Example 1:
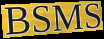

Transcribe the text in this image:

BSMS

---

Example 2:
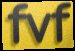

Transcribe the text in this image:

fvf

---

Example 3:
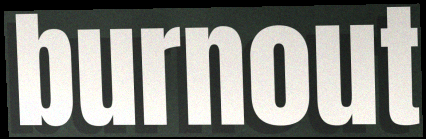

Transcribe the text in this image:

burnout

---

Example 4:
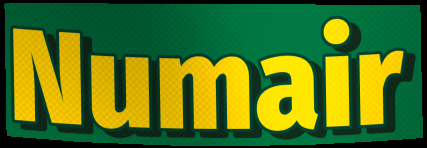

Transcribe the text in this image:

Numair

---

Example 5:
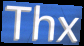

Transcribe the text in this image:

Thx